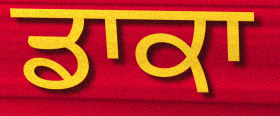
ਡਾਕਾ